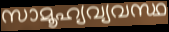
സാമൂഹ്യവ്യവസ്ഥ